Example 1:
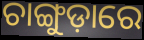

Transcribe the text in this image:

ଚାଙ୍ଗୁଡ଼ାରେ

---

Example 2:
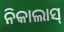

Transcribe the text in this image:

ନିକାଲାସ୍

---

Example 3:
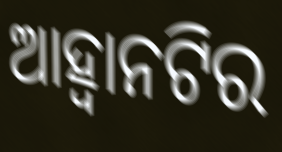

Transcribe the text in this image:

ଆହ୍ଵାନଟିର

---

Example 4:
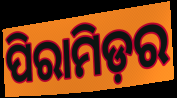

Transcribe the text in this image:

ପିରାମିଡ଼ର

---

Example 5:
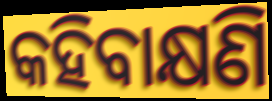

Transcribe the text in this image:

କହିବାକ୍ଷଣି